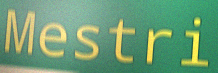
Mestri